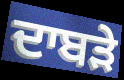
ਦਾਬੜੇ